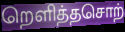
றெளித்தசொற்